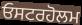
ਓਸਟਰਹੋਲਮ